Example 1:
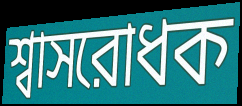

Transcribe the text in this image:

শ্বাসরোধক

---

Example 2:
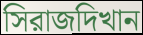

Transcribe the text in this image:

সিরাজদিখান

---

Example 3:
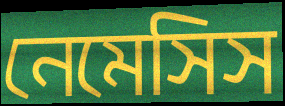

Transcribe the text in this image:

নেমেসিস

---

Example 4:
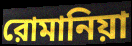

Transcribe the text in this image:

রোমানিয়া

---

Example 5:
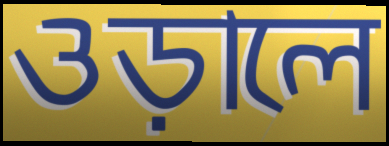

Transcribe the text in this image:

ওড়ালে